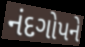
નંદગોપને